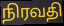
நிரவதி